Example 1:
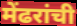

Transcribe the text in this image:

मेंढरांची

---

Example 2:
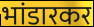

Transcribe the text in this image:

भांडारकर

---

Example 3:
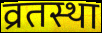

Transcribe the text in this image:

व्रतस्था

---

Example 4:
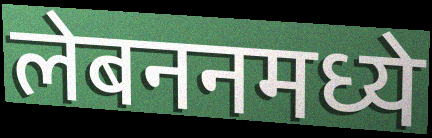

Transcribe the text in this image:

लेबननमध्ये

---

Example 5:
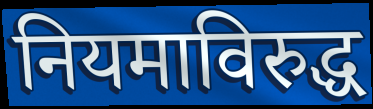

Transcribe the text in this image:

नियमाविरुद्ध